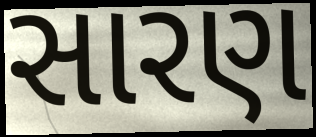
સારણ